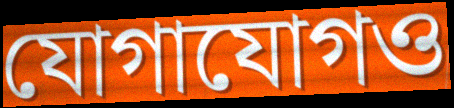
যোগাযোগও